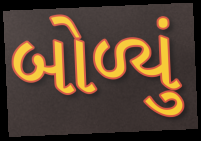
બોળ્યું